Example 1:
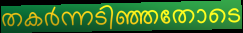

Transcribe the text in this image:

തകർന്നടിഞ്ഞതോടെ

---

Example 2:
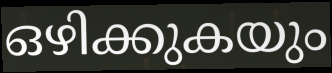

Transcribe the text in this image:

ഒഴിക്കുകയും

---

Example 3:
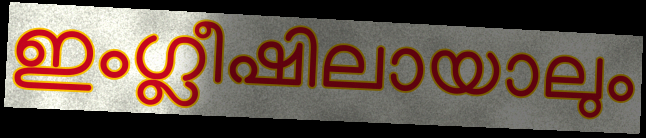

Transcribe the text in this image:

ഇംഗ്ലീഷിലായാലും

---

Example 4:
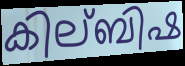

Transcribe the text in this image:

കില്ബിഷ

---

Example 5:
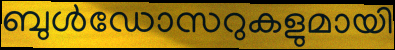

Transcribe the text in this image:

ബുൾഡോസറുകളുമായി